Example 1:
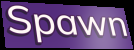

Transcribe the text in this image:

Spawn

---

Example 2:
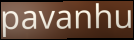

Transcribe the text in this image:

pavanhu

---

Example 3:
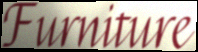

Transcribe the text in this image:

Furniture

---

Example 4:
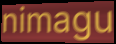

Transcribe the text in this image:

nimagu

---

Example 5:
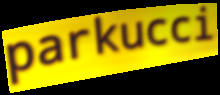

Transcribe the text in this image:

parkucci